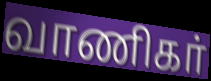
வாணிகர்